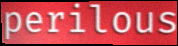
perilous